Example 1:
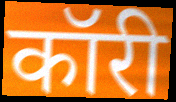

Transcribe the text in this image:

कॉरी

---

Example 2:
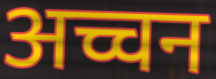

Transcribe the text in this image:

अच्चन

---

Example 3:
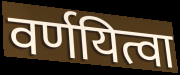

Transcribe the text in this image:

वर्णयित्वा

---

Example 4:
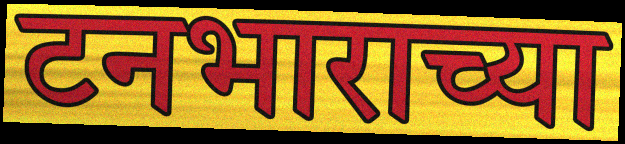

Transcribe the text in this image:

टनभाराच्या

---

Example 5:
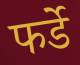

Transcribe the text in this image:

फर्डे